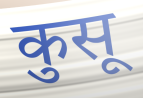
कुसू